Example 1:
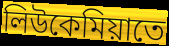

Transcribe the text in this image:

লিউকেমিয়াতে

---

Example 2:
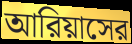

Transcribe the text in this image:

আরিয়াসের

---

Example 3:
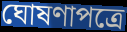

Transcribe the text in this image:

ঘোষণাপত্রে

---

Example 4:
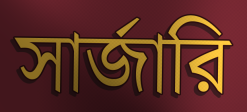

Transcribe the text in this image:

সার্জারি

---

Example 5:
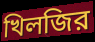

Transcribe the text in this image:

খিলজির